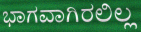
ಭಾಗವಾಗಿರಲಿಲ್ಲ